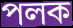
পলক